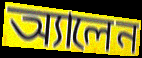
অ্যালেন